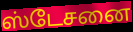
ஸ்டேசனை